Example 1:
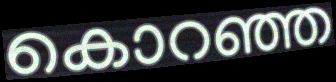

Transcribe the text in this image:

കൊറഞ്ഞ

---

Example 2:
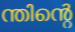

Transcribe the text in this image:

ന്തിന്റെ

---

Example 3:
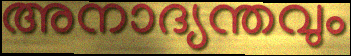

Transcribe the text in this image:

അനാദ്യന്തവും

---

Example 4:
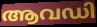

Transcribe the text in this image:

ആവഡി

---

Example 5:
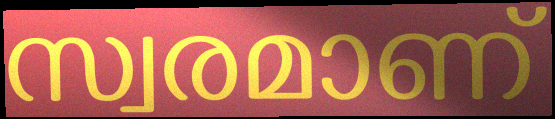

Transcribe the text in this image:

സ്വരമാണ്